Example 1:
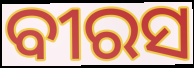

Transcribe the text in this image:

ବୀରସ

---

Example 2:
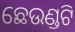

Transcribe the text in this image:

ଛେଉଣ୍ଡଟି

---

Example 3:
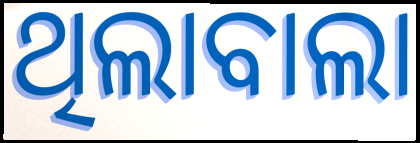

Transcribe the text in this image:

ଥିଲାବାଲା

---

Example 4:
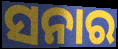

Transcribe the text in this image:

ସନାର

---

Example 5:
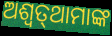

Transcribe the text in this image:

ଅଶ୍ୱତ୍‌ଥାମାଙ୍କ